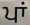
ਪਾਂ